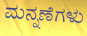
ಮನ್ನಣೆಗಳು